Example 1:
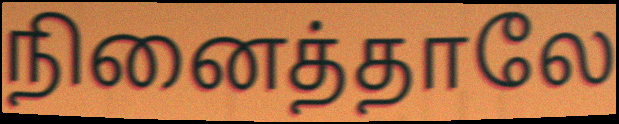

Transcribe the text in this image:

நினைத்தாலே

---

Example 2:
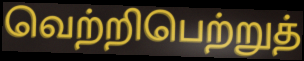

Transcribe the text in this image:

வெற்றிபெற்றுத்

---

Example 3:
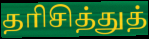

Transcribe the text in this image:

தரிசித்துத்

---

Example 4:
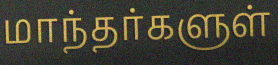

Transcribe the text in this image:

மாந்தர்களுள்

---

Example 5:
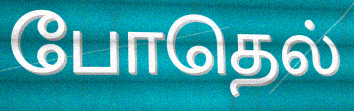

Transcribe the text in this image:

போதெல்